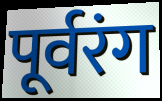
पूर्वरंग